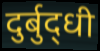
दुर्बुद्धी